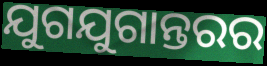
ଯୁଗଯୁଗାନ୍ତରର